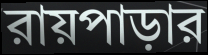
রায়পাড়ার